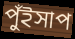
পুঁইসাপ